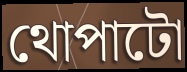
থোপাটো